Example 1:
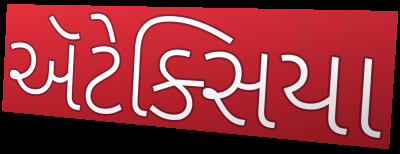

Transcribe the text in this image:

ઍટેક્સિયા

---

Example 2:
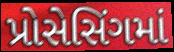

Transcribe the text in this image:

પ્રોસેસિંગમાં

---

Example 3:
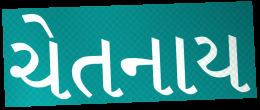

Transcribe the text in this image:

ચેતનાય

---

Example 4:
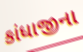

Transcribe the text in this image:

કાંધાજીના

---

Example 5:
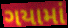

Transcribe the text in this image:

ગયામાં